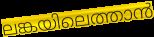
ലങ്കയിലെത്താൻ